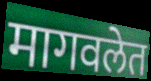
मागवलेत